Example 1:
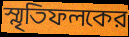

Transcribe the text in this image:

স্মৃতিফলকের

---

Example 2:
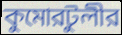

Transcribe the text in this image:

কুমোরটুলীর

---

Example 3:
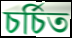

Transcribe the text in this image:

চর্চিত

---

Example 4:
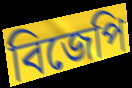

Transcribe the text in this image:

বিজেপি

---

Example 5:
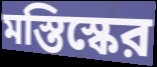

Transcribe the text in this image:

মস্তিস্কের